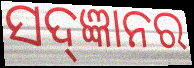
ସଦ୍‌ଜ୍ଞାନର